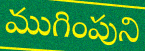
ముగింపుని